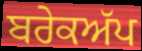
ਬਰੇਕਅੱਪ